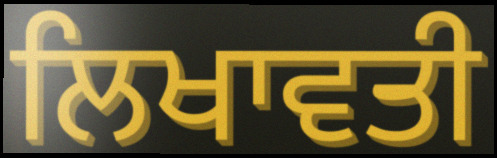
ਲਿਖਾਵਤੀ